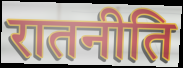
रातनीति